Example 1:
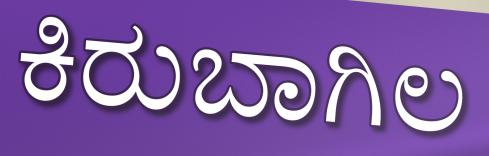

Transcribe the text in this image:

ಕಿರುಬಾಗಿಲ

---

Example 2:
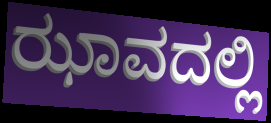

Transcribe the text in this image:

ಝಾವದಲ್ಲಿ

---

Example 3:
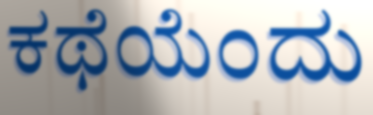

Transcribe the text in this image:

ಕಥೆಯೆಂದು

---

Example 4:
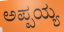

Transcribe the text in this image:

ಅಪ್ಪಯ್ಯ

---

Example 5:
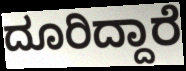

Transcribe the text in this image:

ದೂರಿದ್ದಾರೆ